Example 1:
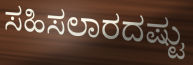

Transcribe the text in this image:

ಸಹಿಸಲಾರದಷ್ಟು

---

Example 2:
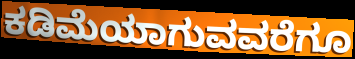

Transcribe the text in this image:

ಕಡಿಮೆಯಾಗುವವರೆಗೂ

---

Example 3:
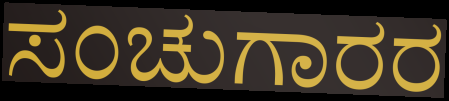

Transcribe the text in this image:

ಸಂಚುಗಾರರ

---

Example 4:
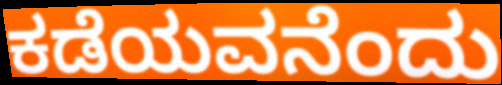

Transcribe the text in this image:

ಕಡೆಯವನೆಂದು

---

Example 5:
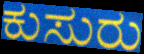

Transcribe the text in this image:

ಕುಸುರು